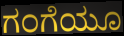
ಗಂಗೆಯೂ